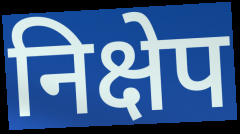
निक्षेप